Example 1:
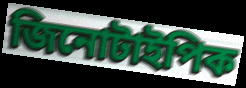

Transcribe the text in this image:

জিনোটাইপিক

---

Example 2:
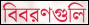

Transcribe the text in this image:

বিবরণগুলি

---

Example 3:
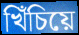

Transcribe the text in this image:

খিঁচিয়ে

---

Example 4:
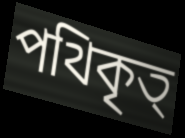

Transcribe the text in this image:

পথিকৃত্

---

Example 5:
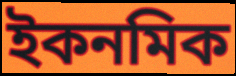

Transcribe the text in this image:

ইকনমিক